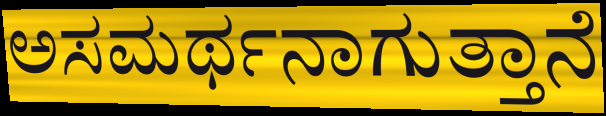
ಅಸಮರ್ಥನಾಗುತ್ತಾನೆ